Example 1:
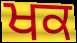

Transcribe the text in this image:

ਖਕ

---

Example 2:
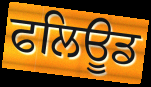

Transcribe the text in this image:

ਫਲਿਊਡ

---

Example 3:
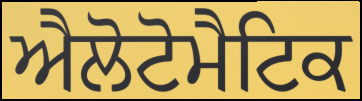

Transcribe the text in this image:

ਐਲੋਟੋਮੈਟਿਕ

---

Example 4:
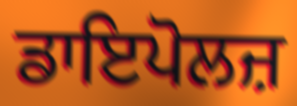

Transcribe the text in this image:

ਡਾਇਪੋਲਜ਼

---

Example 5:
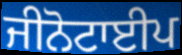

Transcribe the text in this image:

ਜੀਨੋਟਾਈਪ